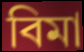
বিমা